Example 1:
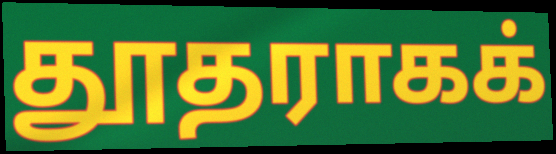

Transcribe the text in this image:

தூதராகக்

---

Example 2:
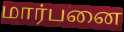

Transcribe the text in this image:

மார்பனை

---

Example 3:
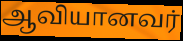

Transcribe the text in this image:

ஆவியானவர்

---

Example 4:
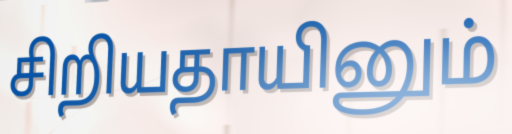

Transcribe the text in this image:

சிறியதாயினும்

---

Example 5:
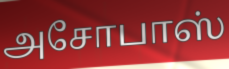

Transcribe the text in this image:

அசோபாஸ்